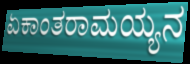
ಏಕಾಂತರಾಮಯ್ಯನ